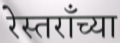
रेस्तराँच्या